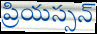
ప్రియస్సన్